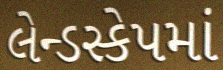
લેન્ડસ્કેપમાં